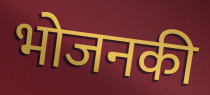
भोजनकी